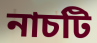
নাচটি